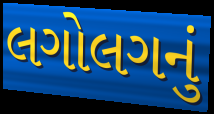
લગોલગનું